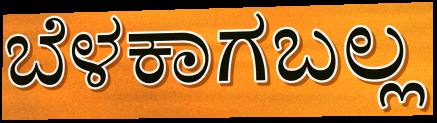
ಬೆಳಕಾಗಬಲ್ಲ